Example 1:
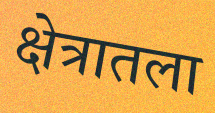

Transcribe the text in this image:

क्षेत्रातला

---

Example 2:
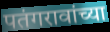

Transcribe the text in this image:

पतंगरावांच्या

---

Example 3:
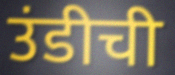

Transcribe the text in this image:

उंडीची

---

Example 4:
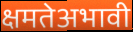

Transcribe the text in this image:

क्षमतेअभावी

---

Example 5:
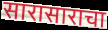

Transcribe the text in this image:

सारासाराचा